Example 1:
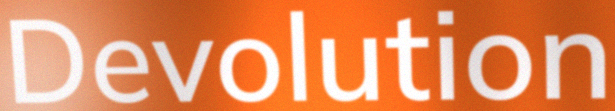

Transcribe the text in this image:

Devolution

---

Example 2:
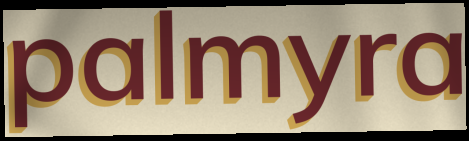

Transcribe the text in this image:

palmyra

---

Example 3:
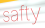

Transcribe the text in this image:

safty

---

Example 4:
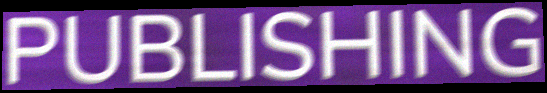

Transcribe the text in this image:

PUBLISHING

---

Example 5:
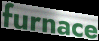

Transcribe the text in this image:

furnace